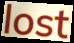
lost